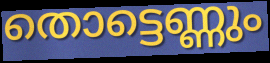
തൊട്ടെണ്ണും